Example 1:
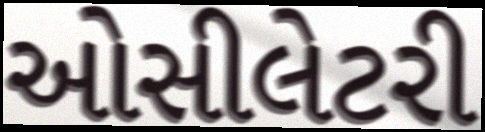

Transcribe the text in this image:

ઓસીલેટરી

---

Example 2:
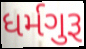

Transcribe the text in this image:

ધર્મગુરૂ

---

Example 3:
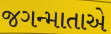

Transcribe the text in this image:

જગન્માતાએ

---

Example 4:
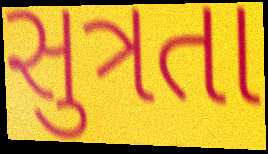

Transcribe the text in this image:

સુત્રતા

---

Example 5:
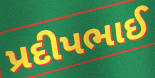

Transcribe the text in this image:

પ્રદીપભાઈ